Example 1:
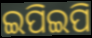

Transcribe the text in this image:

ଇପିଇପି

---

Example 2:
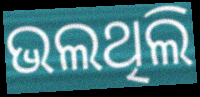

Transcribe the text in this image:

ଭଲଥିଲି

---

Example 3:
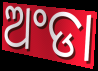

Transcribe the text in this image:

ଅଂଡା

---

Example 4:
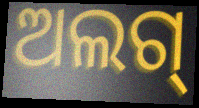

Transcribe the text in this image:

ଅଲଗ୍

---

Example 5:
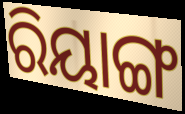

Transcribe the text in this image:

ରିୟାଙ୍ଗ